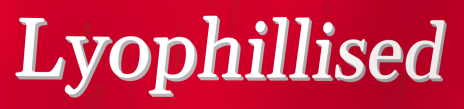
Lyophillised